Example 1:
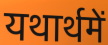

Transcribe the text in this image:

यथार्थमें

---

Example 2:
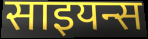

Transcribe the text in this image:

साइयन्स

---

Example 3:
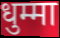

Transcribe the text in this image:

धुम्मा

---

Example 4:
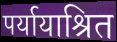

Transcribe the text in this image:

पर्यायाश्रित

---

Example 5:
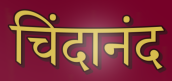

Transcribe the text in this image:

चिंदानंद